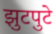
झुटपुटे